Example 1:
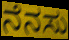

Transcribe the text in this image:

ನೆನಸು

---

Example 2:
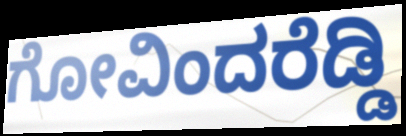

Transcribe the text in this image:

ಗೋವಿಂದರೆಡ್ಡಿ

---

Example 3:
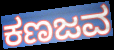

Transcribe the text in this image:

ಕಣಜವ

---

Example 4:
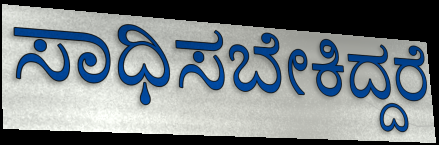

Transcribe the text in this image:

ಸಾಧಿಸಬೇಕಿದ್ದರೆ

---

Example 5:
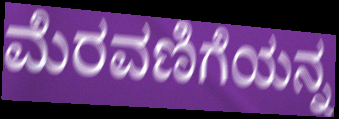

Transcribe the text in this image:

ಮೆರವಣಿಗೆಯನ್ನ